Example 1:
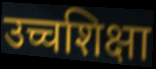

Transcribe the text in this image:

उच्‍चशिक्षा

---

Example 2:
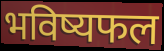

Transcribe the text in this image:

भविष्‍यफल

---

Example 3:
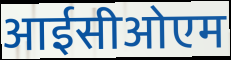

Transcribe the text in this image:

आईसीओएम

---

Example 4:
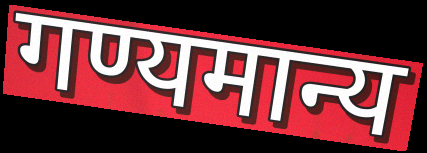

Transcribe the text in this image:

गण्यमान्य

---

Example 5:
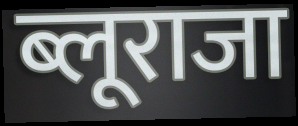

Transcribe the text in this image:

ब्लूराजा